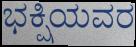
ಭಕ್ಷಿಯವರ